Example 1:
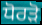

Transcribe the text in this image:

ਧੋਰੜੋ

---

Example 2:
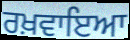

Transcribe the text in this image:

ਰਖ਼ਵਾਇਆ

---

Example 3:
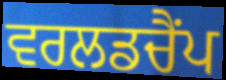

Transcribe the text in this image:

ਵਰਲਡਚੈਂਪ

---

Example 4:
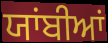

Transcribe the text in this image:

ਯਾਂਬੀਆਂ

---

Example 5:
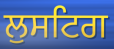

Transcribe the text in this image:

ਲੁਸਟਿਗ